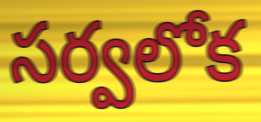
సర్వలోక